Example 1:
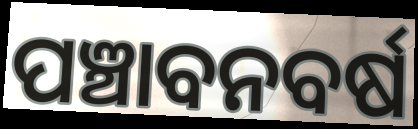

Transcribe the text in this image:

ପଞ୍ଚାବନବର୍ଷ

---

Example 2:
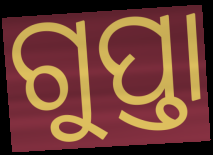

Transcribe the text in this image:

ଗୁପ୍ତା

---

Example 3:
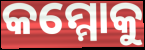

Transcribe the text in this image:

କମ୍ମୋକୁ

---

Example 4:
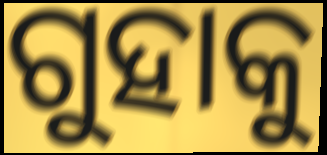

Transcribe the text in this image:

ଗୁହାକୁ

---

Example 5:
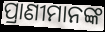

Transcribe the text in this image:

ପ୍ରାଣୀମାନଙ୍କ